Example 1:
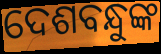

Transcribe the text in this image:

ଦେଶବନ୍ଧୁଙ୍କ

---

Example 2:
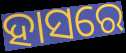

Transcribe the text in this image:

ହାସରେ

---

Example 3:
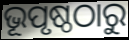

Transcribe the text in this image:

ଭୂପୃଷ୍ଠଠାରୁ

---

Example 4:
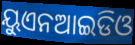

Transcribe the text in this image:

ୟୁଏନଆଇଡିଓ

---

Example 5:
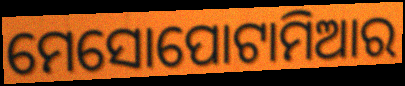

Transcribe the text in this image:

ମେସୋପୋଟାମିଆର